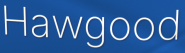
Hawgood